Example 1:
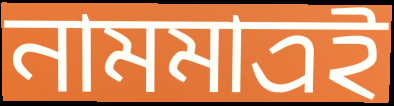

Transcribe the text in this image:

নামমাত্রই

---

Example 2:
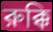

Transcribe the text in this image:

রুক্কি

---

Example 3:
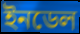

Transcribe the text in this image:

ইনডেল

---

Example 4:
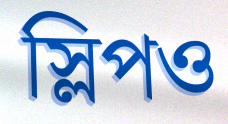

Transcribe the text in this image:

স্লিপও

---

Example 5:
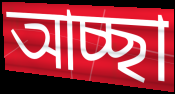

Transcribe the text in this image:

আচ্ছা